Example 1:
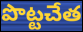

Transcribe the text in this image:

పొట్టచేత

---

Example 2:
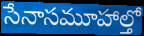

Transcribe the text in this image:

సేనాసమూహాల్తో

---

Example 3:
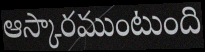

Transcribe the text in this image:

ఆస్కారముంటుంది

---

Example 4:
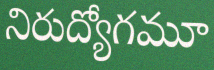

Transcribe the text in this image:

నిరుద్యోగమూ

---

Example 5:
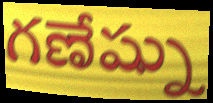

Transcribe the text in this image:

గణేష్ను